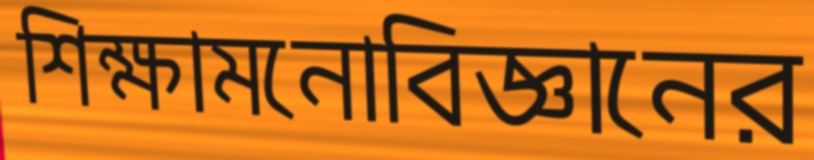
শিক্ষামনোবিজ্ঞানের